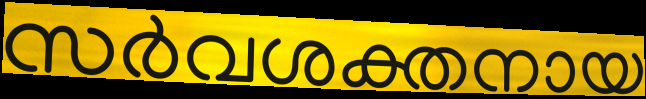
സർവശക്തനായ